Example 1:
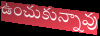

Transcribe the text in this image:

ఉంచుకున్నావు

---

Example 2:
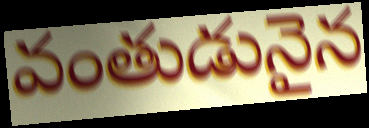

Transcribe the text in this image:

వంతుడునైన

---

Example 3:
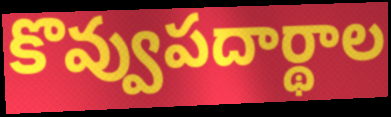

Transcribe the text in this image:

కొవ్వుపదార్థాల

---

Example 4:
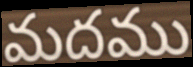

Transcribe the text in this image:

మదము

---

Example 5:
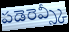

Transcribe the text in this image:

పడెరెవ్స్కీ